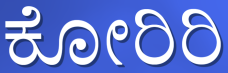
ಕೋರಿರಿ